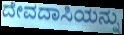
ದೇವದಾಸಿಯನ್ನು